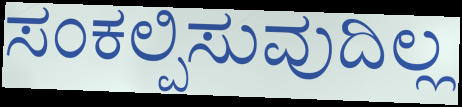
ಸಂಕಲ್ಪಿಸುವುದಿಲ್ಲ